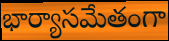
భార్యాసమేతంగా